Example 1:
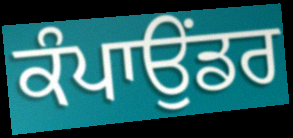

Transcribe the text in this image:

ਕੰਪਾਉਂਡਰ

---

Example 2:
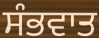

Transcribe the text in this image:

ਸੰਭਵਾਤ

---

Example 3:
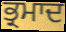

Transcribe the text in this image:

ਭ੍ਰਮਾਦ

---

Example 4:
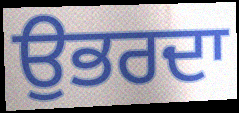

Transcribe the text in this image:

ਉਭਰਦਾ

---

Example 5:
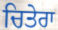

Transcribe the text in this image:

ਚਿਤੇਰਾ